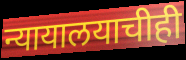
न्यायालयाचीही